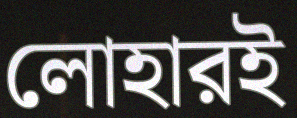
লোহারই